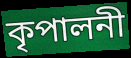
কৃপালনী